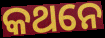
କଥନେ